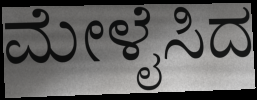
ಮೇಳೈಸಿದ